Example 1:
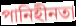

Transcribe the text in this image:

পানিহীনতা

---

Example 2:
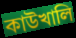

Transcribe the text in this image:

কাউখালি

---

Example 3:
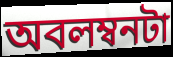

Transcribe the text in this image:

অবলম্বনটা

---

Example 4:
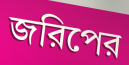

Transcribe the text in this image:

জরিপের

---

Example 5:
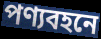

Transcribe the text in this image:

পণ্যবহনে